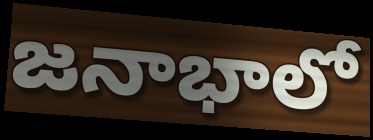
జనాభాలో